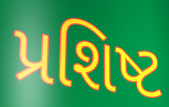
પ્રશિષ્ટ